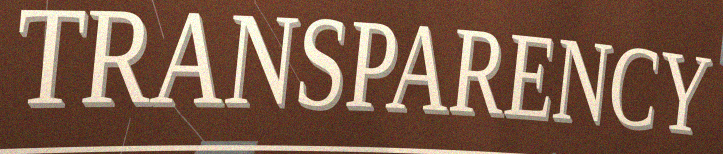
TRANSPARENCY